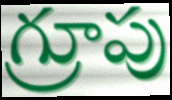
గ్రూపు